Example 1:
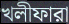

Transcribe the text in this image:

খলীফারা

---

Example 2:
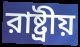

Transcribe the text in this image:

রাষ্ট্রীয়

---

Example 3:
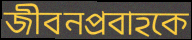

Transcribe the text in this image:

জীবনপ্রবাহকে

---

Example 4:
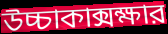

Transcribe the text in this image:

উচ্চাকাক্সক্ষার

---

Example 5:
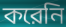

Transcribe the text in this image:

করেনি